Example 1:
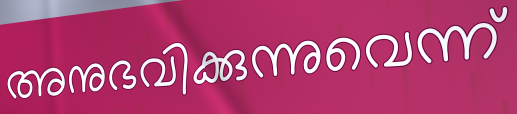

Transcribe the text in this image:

അനുഭവിക്കുന്നുവെന്ന്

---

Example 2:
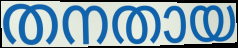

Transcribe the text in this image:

തനതായ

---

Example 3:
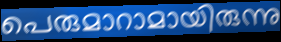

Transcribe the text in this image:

പെരുമാറാമായിരുന്നു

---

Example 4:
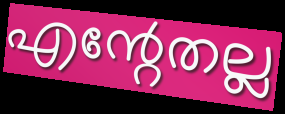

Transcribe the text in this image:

എന്റേതല്ല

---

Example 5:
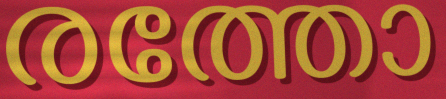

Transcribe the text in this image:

രത്തോ